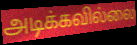
அடிக்கவில்லை